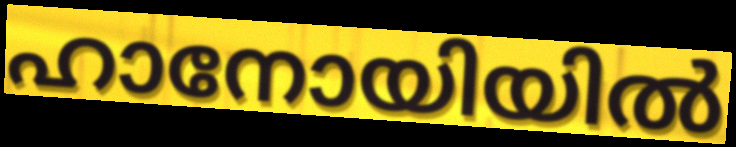
ഹാനോയിയിൽ